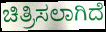
ಚಿತ್ರಿಸಲಾಗಿದೆ